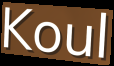
Koul